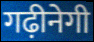
गढ़ीनेगी